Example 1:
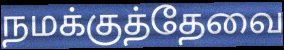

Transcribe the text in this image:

நமக்குத்தேவை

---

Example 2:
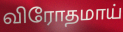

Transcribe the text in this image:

விரோதமாய்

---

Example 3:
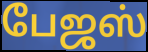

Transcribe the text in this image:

பேஜஸ்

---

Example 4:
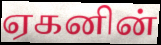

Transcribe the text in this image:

ஏகனின்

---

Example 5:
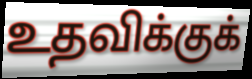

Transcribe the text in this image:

உதவிக்குக்